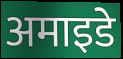
अमाइडे